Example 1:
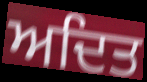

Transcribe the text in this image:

ਅਦਿਤ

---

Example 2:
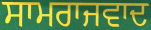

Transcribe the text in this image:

ਸਾਮਰਾਜਵਾਦ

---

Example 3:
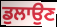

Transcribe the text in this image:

ਡੁਲਾਉਣ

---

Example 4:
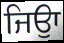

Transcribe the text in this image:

ਜਿਉਾ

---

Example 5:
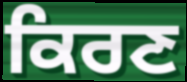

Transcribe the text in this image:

ਕਿਰਣ